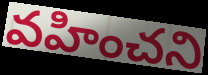
వహించని